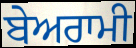
ਬੇਅਰਾਮੀ